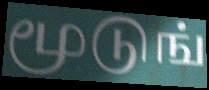
மூடுங்